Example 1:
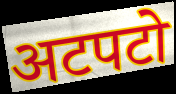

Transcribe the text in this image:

अटपटो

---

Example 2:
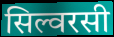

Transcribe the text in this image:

सिल्वरसी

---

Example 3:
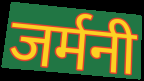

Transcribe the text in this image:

जर्मनी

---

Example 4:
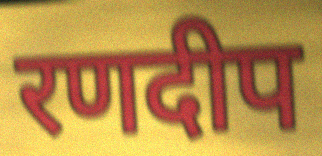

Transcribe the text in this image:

रणदीप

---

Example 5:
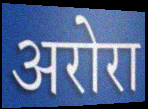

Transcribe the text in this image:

अरोरा